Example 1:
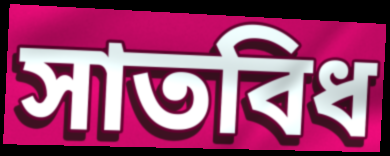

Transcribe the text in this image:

সাতবিধ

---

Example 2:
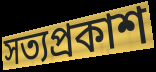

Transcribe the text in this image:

সত্যপ্ৰকাশ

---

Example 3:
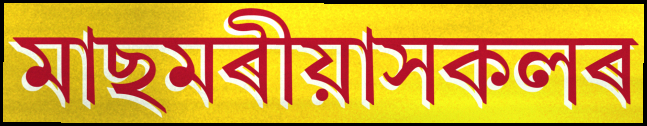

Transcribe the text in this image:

মাছমৰীয়াসকলৰ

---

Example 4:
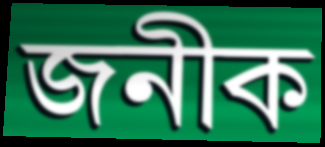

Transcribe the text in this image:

জনীক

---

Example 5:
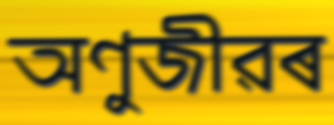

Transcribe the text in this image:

অণুজীৱৰ